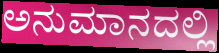
ಅನುಮಾನದಲ್ಲಿ